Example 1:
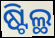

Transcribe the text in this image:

ଷ୍ଟିଲ୍ଥ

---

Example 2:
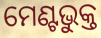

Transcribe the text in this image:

ମେଣ୍ଟଭୁକ୍ତ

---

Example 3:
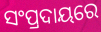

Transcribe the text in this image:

ସଂପ୍ରଦାୟରେ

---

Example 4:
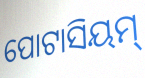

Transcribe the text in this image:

ପୋଟାସିୟମ୍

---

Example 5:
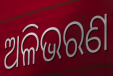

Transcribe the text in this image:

ଅଳିଭରଣ